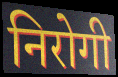
निरोगी